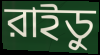
রাইডু